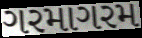
ગરમાગરમ